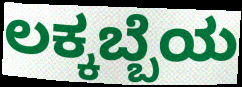
ಲಕ್ಕಬ್ಬೆಯ